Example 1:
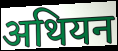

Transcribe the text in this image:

अथियन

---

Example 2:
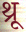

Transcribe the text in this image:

थ्रू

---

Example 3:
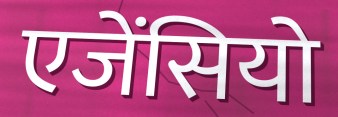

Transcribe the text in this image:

एजेंसियो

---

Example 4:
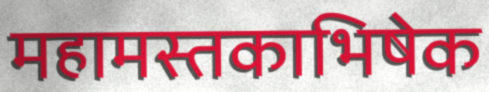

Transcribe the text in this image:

महामस्तकाभिषेक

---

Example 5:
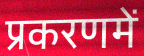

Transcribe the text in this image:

प्रकरणमें